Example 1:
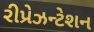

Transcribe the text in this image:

રીપ્રેઝન્ટેશન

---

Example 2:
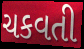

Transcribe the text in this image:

ચકવતી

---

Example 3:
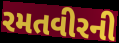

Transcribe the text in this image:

રમતવીરની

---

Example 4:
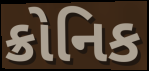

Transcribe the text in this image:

ક્રોનિક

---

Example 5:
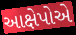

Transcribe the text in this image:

આક્ષેપોએ